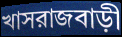
খাসরাজবাড়ী